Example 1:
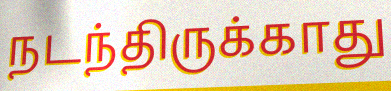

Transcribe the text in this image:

நடந்திருக்காது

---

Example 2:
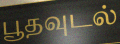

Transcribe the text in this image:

பூதவுடல்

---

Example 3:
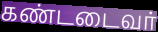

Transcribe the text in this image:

கண்டடைவர்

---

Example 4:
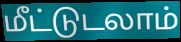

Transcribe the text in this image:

மீட்டுடலாம்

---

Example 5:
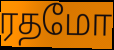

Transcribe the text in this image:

ரதமோ